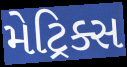
મેટ્રિક્સ